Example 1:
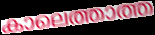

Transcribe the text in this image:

കാലെത്താത്ത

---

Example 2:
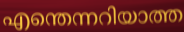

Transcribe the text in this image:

എന്തെന്നറിയാത്ത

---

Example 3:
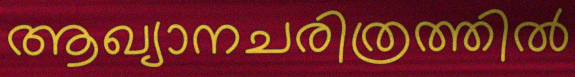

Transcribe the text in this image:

ആഖ്യാനചരിത്രത്തിൽ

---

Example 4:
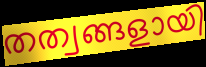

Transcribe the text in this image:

തത്വങ്ങളായി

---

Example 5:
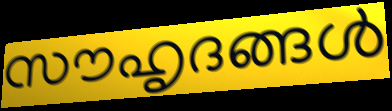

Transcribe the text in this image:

സൗഹൃദങ്ങൾ